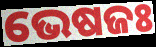
ଭେଷଜଃ